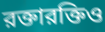
রক্তারক্তিও